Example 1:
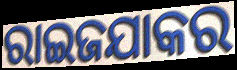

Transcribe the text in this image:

ରାଇଜଯାକର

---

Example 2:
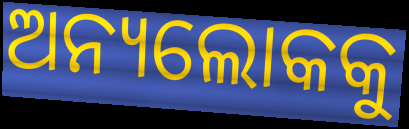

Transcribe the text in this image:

ଅନ୍ୟଲୋକକୁ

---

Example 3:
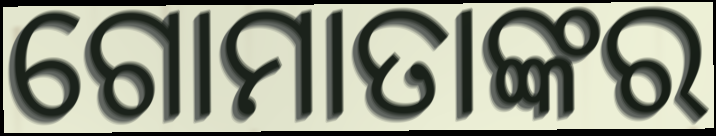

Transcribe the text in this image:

ଗୋମାତାଙ୍କର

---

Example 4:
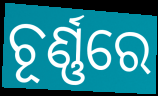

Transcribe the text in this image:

ଚୂର୍ଣ୍ଣରେ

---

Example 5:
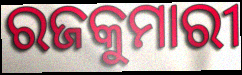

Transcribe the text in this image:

ରଜକୁମାରୀ